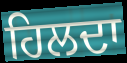
ਹਿਲਦਾ